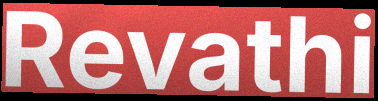
Revathi